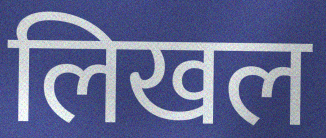
लिखल